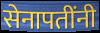
सेनापतींनी